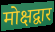
मोक्षद्वार